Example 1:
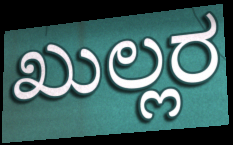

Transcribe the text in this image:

ಖುಲ್ಲರ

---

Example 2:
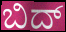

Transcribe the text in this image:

ಬಿದ್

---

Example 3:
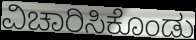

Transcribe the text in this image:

ವಿಚಾರಿಸಿಕೊಂಡು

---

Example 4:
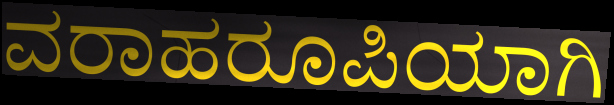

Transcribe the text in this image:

ವರಾಹರೂಪಿಯಾಗಿ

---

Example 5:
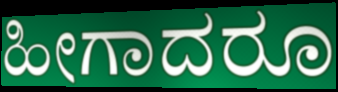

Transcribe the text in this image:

ಹೀಗಾದರೂ